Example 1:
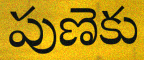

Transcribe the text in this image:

పుణెకు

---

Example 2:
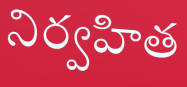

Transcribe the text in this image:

నిర్వహిత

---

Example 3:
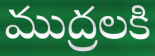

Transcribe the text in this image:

ముద్రలకి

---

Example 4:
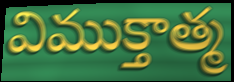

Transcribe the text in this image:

విముక్తాత్మ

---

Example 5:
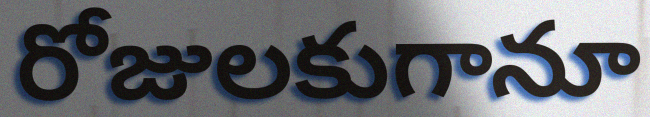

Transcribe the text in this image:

రోజులకుగానూ